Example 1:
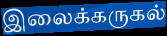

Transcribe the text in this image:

இலைக்கருகல்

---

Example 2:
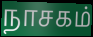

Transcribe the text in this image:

நாசகம்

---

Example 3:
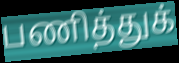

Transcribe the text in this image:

பணித்துக்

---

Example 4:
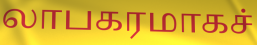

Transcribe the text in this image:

லாபகரமாகச்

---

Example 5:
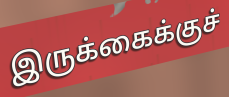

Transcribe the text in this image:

இருக்கைக்குச்